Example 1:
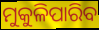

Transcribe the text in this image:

ମୁକୁଳିପାରିବ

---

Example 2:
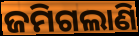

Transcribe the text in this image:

ଜମିଗଲାଣି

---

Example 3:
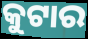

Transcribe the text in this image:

କୁଟାର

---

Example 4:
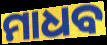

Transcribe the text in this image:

ମାଧବ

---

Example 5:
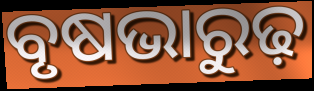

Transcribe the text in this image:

ବୃଷଭାରୁଢ଼